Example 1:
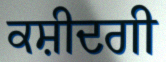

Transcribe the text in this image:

ਕਸ਼ੀਦਗੀ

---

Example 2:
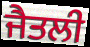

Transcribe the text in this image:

ਜੈਤਲੀ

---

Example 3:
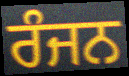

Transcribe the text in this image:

ਰੰਜਨ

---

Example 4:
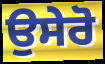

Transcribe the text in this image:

ਉਸੇਰੋ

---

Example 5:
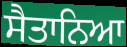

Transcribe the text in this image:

ਸੈਤਾਨਿਆ